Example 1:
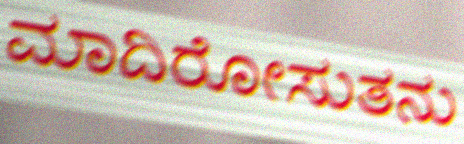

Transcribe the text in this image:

ಮಾದಿರೋಸುತನು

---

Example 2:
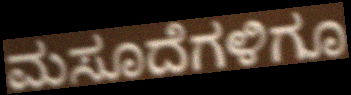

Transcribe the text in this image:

ಮಸೂದೆಗಳಿಗೂ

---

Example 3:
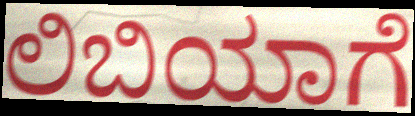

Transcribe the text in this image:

ಲಿಬಿಯಾಗೆ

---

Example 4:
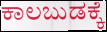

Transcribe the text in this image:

ಕಾಲಬುಡಕ್ಕೆ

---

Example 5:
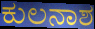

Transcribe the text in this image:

ಕುಲನಾಶ